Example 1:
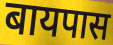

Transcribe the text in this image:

बायपास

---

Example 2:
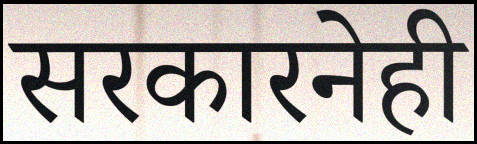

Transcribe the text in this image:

सरकारनेही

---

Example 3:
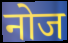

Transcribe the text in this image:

नोज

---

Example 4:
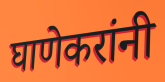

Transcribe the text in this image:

घाणेकरांनी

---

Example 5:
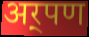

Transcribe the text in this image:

अर्पण